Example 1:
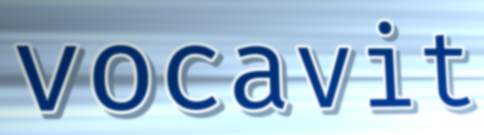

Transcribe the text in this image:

vocavit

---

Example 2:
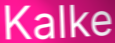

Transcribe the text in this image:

Kalke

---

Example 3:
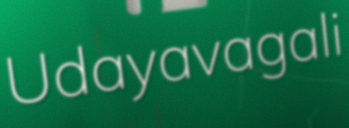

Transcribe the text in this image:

Udayavagali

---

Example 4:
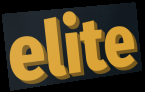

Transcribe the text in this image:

elite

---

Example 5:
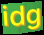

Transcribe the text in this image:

idg